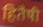
हितैषी